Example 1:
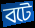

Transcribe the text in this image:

বটে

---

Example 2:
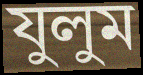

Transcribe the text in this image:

যুলুম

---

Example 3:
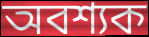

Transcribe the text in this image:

অবশ্যক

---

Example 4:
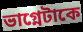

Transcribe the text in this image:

ভাগ্নেটাকে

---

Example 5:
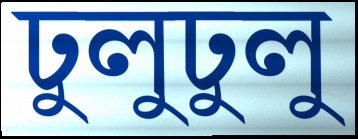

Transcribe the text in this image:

ঢুলুঢুলু